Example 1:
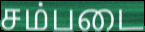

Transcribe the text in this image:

சம்படை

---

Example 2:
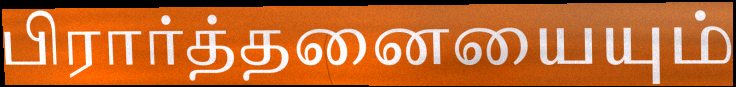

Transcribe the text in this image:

பிரார்த்தனையையும்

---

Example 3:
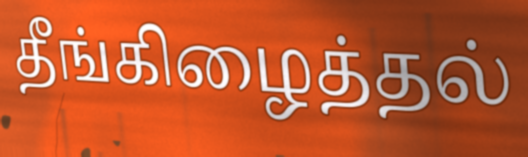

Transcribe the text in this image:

தீங்கிழைத்தல்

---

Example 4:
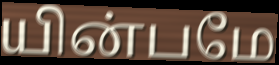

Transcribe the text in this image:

யின்பமே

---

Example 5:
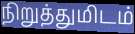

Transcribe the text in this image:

நிறுத்துமிடம்